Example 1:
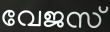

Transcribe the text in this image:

വേജസ്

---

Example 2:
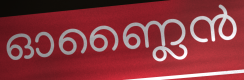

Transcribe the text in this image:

ഓണ്ലൈൻ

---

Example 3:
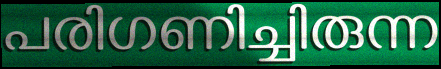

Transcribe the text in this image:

പരിഗണിച്ചിരുന്ന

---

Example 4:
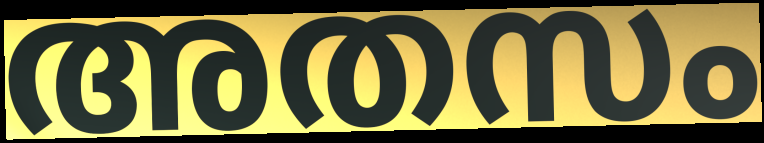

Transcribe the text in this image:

അതസം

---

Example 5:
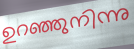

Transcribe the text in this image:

ഉറഞ്ഞുനിന്നു